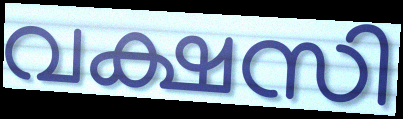
വക്ഷസി